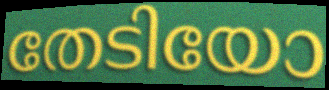
തേടിയോ